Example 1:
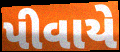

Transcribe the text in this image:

પીવાયે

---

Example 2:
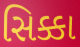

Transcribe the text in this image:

સિક્કા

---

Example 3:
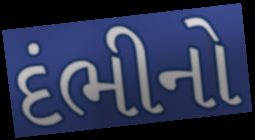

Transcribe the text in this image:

દંભીનો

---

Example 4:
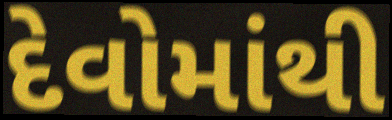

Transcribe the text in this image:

દેવોમાંથી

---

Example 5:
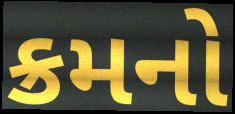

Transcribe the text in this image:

ક્રમનો